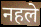
नहले